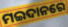
ମଇଦାନରେ